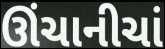
ઊંચાનીચાં